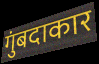
गुंबदाकार